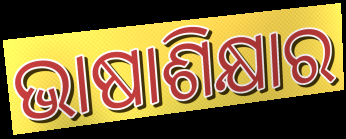
ଭାଷାଶିକ୍ଷାର